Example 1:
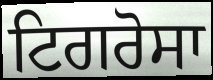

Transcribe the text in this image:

ਟਿਗਰੋਸਾ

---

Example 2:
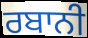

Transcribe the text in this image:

ਰਬਾਨੀ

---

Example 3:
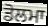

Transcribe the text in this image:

ਡੋਲਮਾ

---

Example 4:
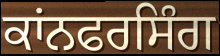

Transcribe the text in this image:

ਕਾਂਨਫਰਸਿੰਗ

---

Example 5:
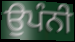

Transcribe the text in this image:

ਉਪੰਨੀ